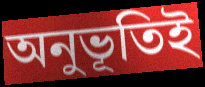
অনুভূতিই